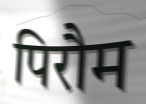
पिरौम